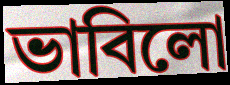
ভাবিলো